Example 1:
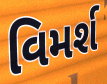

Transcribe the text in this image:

વિમર્શ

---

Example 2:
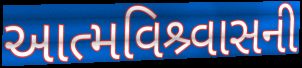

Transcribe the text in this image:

આત્મવિશ્ર્વાસની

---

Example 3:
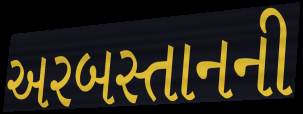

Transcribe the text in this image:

અરબસ્તાનની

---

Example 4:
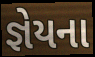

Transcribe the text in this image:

જ્ઞેયના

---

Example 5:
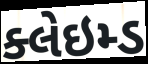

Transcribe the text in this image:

ક્લેઇમ્ડ